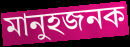
মানুহজনক